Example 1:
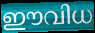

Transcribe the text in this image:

ഈവിധ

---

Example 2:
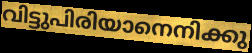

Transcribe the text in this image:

വിട്ടുപിരിയാനെനിക്കു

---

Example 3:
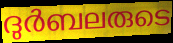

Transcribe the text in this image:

ദുർബലരുടെ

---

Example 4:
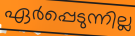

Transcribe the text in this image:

ഏർപ്പെടുന്നില്ല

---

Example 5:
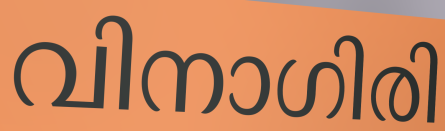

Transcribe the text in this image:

വിനാഗിരി